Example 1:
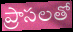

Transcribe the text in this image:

ప్రాసలతో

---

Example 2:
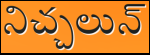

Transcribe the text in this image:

నిచ్చలున్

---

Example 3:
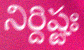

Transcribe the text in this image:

నిర్దిష్టః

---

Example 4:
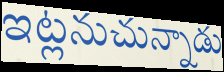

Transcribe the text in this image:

ఇట్లనుచున్నాడు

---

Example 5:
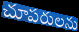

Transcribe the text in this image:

చూపరులను